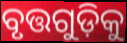
ବୃତ୍ତଗୁଡ଼ିକୁ